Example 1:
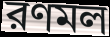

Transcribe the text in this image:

রণমল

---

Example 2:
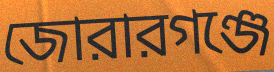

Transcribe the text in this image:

জোরারগঞ্জে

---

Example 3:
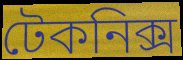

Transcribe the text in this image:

টেকনিক্স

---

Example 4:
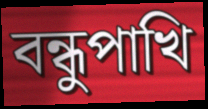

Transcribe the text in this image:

বন্ধুপাখি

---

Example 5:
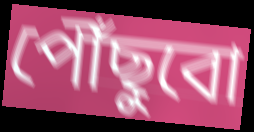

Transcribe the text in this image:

পৌঁছুবো